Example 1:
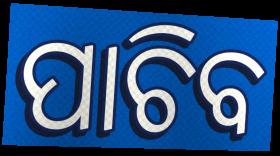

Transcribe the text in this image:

ପାଚିବ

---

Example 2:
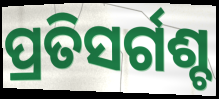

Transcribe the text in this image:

ପ୍ରତିସର୍ଗଶ୍ଚ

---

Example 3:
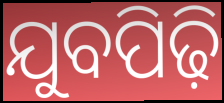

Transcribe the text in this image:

ଯୁବପିଢ଼ି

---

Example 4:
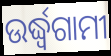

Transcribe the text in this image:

ଉର୍ଦ୍ଧ୍ୱଗାମୀ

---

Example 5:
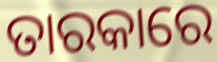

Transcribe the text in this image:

ତାରକାରେ